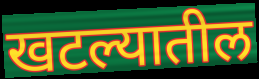
खटल्यातील